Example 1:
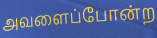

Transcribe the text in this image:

அவளைப்போன்ற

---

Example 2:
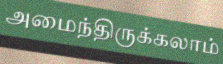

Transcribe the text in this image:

அமைந்திருக்கலாம்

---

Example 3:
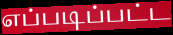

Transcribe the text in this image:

எப்படிப்பட்ட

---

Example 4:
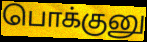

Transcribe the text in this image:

பொக்குனு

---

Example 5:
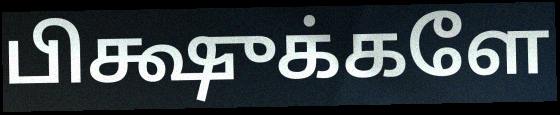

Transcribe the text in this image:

பிக்ஷுக்களே